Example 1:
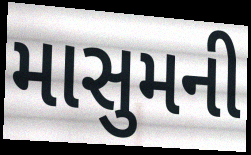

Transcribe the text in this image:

માસુમની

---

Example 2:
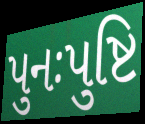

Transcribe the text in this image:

પુનઃપુષ્ટિ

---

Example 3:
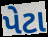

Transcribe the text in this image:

પેટા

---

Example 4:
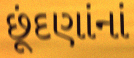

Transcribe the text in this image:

છૂંદણાંનાં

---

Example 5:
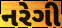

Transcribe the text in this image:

નરેગી